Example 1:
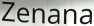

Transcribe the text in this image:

Zenana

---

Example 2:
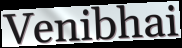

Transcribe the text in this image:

Venibhai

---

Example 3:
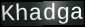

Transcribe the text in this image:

Khadga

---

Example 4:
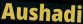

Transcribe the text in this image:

Aushadi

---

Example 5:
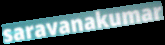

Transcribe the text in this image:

saravanakumar